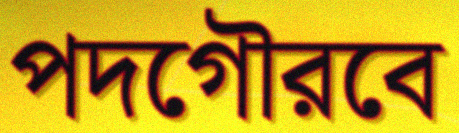
পদগৌরবে